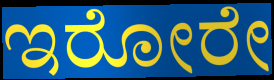
ಇರೋರೇ